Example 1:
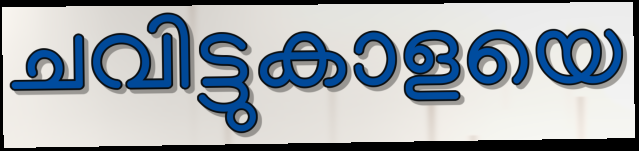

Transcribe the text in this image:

ചവിട്ടുകാളയെ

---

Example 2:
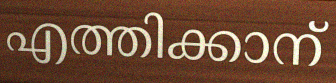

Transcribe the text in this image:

എത്തിക്കാന്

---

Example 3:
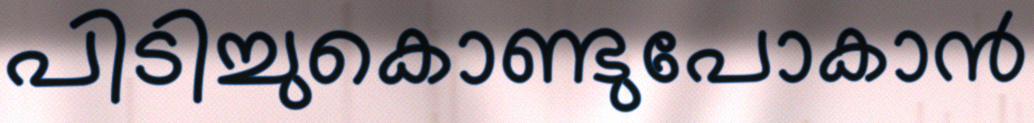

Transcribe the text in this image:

പിടിച്ചുകൊണ്ടുപോകാൻ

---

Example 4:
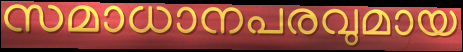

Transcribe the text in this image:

സമാധാനപരവുമായ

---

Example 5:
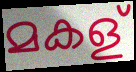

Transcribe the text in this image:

മകള്